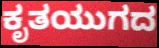
ಕೃತಯುಗದ